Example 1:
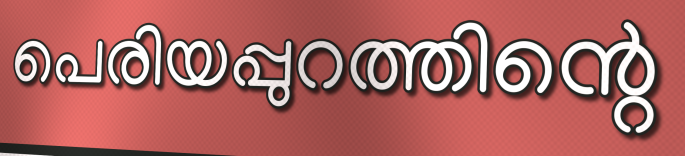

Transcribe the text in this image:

പെരിയപ്പുറത്തിന്റെ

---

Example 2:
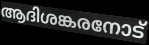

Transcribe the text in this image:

ആദിശങ്കരനോട്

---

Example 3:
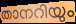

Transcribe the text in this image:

താനറിയും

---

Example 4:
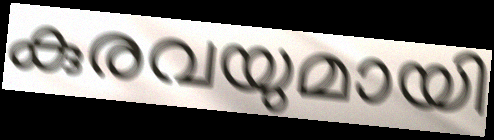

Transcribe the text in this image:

കുരവയുമായി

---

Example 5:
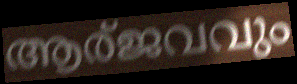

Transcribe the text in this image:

ആര്ജവവും